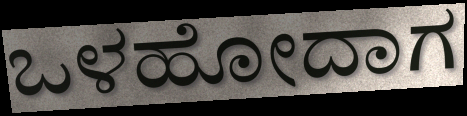
ಒಳಹೋದಾಗ